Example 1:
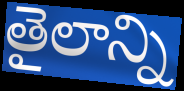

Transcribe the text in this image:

తైలాన్ని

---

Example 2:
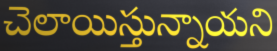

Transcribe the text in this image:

చెలాయిస్తున్నాయని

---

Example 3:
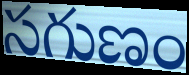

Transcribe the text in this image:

సగుణం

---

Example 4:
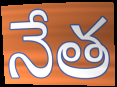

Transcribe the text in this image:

నేత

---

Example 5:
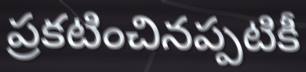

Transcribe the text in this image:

ప్రకటించినప్పటికీ